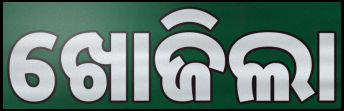
ଖୋଜିଲା